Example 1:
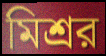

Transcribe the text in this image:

মিশ্রর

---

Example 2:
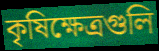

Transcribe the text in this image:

কৃষিক্ষেত্রগুলি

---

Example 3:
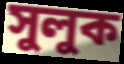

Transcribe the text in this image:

সুলুক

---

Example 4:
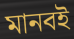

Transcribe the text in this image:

মানবই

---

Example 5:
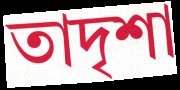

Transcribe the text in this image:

তাদৃশা